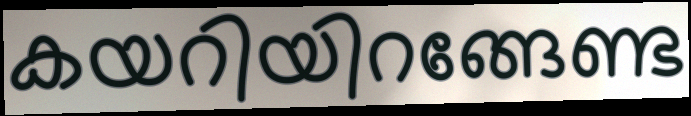
കയറിയിറങ്ങേണ്ട